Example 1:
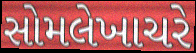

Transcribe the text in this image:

સોમલેખાચરે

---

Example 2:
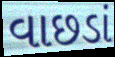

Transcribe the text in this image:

વાછડાં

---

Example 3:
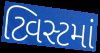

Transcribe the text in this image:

ટ્વિસ્ટમાં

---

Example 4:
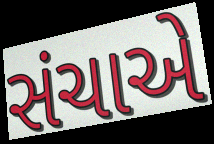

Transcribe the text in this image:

સંચાએ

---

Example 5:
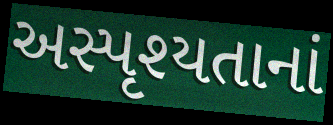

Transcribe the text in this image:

અસ્પૃશ્યતાનાં